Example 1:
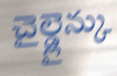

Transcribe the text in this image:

చైల్డ్లైన్కు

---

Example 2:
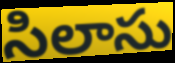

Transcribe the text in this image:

సిలాసు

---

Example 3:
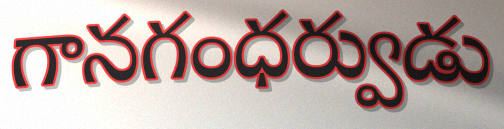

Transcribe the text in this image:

గానగంధర్వుడు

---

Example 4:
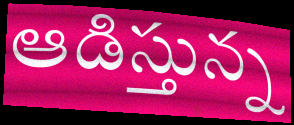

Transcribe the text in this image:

ఆడిస్తున్న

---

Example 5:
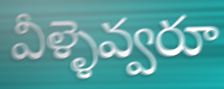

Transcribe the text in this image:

వీళ్ళెవ్వరూ